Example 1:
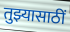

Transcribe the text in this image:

तुझ्यासाठीं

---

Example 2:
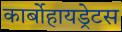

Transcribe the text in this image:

कार्बोहायड्रेटस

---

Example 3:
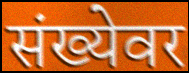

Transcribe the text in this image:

संख्येवर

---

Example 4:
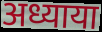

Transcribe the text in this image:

अध्याया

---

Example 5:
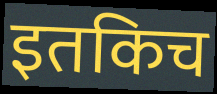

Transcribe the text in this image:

इतकिच